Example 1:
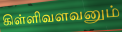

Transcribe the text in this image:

கிள்ளிவளவனும்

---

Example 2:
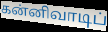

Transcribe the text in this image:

கன்னிவாடிப்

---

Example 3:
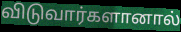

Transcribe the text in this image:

விடுவார்களானால்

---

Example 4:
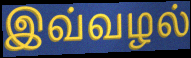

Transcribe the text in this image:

இவ்வழல்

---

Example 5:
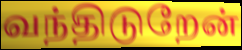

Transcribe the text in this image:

வந்திடுறேன்